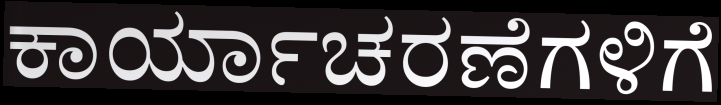
ಕಾರ್ಯಾಚರಣೆಗಳಿಗೆ